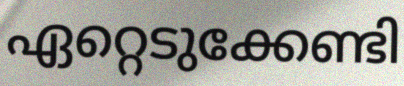
ഏറ്റെടുക്കേണ്ടി